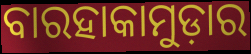
ବାରହାକାମୁଡ଼ାର